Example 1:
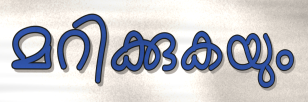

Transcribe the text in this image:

മറിക്കുകയും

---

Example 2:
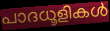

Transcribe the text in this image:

പാദധൂളികൾ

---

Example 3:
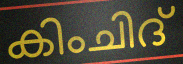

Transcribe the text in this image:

കിംചിദ്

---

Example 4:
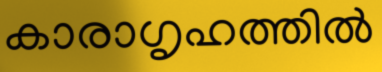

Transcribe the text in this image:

കാരാഗൃഹത്തിൽ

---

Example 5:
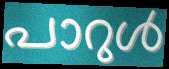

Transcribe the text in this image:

പാറുൾ